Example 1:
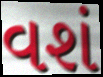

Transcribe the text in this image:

વશં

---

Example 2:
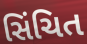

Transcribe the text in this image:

સિંચિત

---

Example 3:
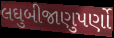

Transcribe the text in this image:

લઘુબીજાણુપર્ણો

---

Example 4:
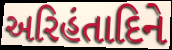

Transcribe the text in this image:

અરિહંતાદિને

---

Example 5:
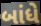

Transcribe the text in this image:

બાંધે